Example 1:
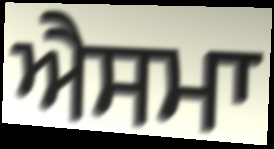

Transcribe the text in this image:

ਐਸਮਾ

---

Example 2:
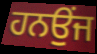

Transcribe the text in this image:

ਹਨਉਂਜ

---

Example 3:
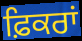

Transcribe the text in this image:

ਫ਼ਿਕਰਾਂ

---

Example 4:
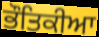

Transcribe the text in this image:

ਭੌਤਿਕੀਆ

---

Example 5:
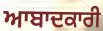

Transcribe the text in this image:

ਆਬਾਦਕਾਰੀ